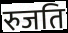
रुजति